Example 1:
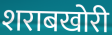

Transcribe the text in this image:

शराबखोरी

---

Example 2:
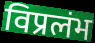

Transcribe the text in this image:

विप्रलंभ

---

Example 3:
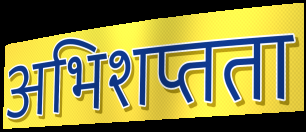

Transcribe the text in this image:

अभिशप्तता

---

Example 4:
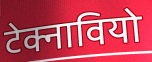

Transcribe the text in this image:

टेक्नावियो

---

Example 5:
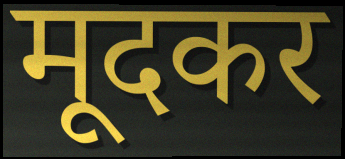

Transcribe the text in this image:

मूदकर